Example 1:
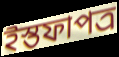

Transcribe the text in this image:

ইস্তফাপত্র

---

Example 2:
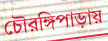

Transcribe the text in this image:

চৌরঙ্গিপাড়ায়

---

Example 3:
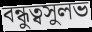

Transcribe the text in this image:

বন্ধুত্বসুলভ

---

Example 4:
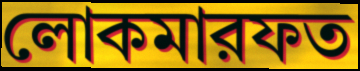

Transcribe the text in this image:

লোকমারফত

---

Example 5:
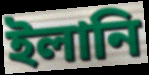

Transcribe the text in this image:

ইলানি